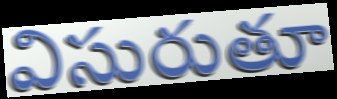
విసురుతూ